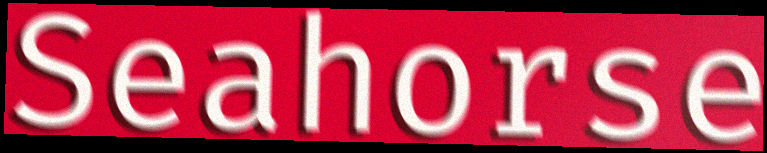
Seahorse